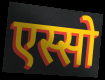
एस्सो